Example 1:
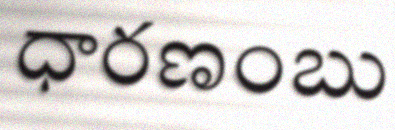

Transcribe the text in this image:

ధారణంబు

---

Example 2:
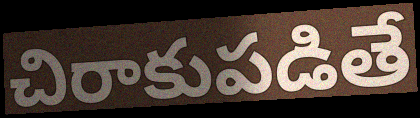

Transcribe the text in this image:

చిరాకుపడితే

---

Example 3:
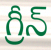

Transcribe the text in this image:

గ్రీన్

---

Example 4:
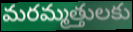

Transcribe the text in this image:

మరమ్మత్తులకు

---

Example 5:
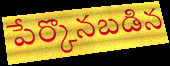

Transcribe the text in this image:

పేర్కొనబడిన